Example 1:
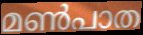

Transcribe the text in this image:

മൺപാത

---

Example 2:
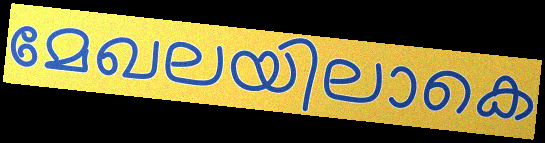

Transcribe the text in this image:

മേഖലയിലാകെ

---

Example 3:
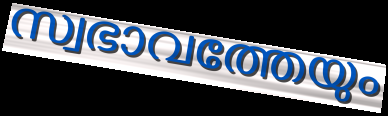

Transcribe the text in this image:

സ്വഭാവത്തേയും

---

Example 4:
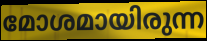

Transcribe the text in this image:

മോശമായിരുന്ന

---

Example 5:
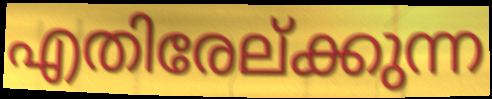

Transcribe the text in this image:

എതിരേല്ക്കുന്ന